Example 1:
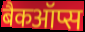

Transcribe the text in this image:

बैकऑप्स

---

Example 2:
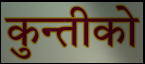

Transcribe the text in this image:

कुन्तीको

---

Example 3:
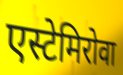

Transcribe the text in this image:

एस्टेमिरोवा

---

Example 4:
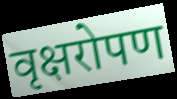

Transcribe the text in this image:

वृक्षरोपण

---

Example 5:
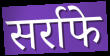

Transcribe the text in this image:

सर्राफे